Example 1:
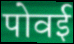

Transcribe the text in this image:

पोवई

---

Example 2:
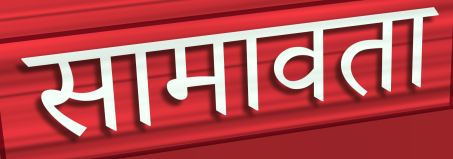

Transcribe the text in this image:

सामावता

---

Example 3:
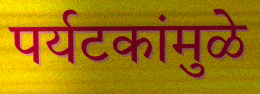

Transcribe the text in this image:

पर्यटकांमुळे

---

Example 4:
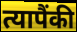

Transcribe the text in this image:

त्यापैंकी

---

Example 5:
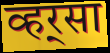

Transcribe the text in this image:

व्हर्सा